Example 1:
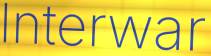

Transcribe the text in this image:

Interwar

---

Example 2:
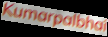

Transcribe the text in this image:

Kumarpalbhai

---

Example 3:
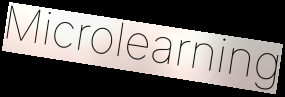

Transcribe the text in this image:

Microlearning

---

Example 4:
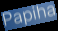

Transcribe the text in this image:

Papiha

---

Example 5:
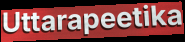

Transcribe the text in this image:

Uttarapeetika